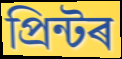
প্ৰিন্টৰ